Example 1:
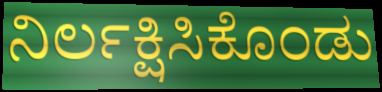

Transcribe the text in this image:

ನಿರ್ಲಕ್ಷಿಸಿಕೊಂಡು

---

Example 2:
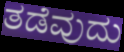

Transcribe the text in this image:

ತಡೆವುದು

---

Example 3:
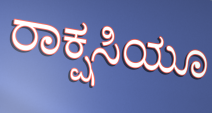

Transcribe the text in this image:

ರಾಕ್ಷಸಿಯೂ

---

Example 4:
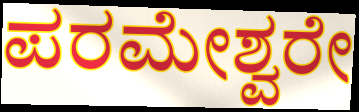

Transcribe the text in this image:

ಪರಮೇಶ್ವರೇ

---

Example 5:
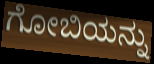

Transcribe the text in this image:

ಗೋಬಿಯನ್ನು